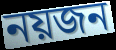
নয়জন